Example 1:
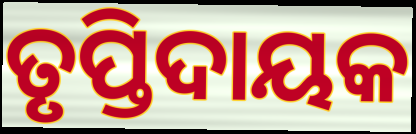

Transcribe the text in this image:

ତୃପ୍ତିଦାୟକ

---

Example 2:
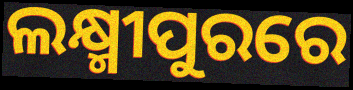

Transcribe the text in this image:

ଲକ୍ଷ୍ମୀପୁରରେ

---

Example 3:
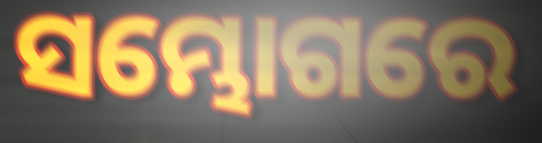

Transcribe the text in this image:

ସମ୍ଭୋଗରେ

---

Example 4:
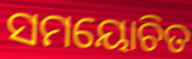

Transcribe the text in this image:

ସମୟୋଚିତ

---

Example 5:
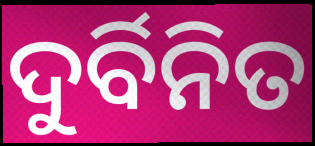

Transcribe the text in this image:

ଦୁର୍ବିନିତ